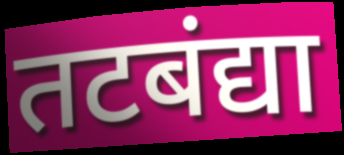
तटबंद्या